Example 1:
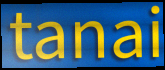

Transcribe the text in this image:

tanai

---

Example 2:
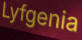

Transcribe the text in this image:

Lyfgenia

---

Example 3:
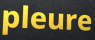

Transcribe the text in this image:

pleure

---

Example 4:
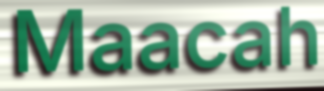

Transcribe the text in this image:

Maacah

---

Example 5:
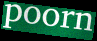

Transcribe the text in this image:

poorn